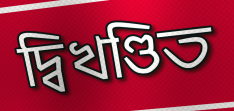
দ্বিখণ্ডিত